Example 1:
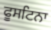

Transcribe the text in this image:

ਫੂਸਟਿਨਾ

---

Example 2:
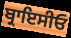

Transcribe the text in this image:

ਬ੍ਰਾਇਸੀਓ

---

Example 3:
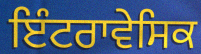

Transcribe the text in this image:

ਇੰਟਰਾਵੇਸਿਕ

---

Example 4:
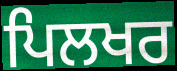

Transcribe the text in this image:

ਪਿਲਖਰ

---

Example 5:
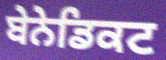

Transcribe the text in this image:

ਬੇਨੇਡਿਕਟ